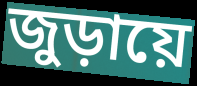
জুড়ায়ে